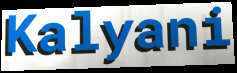
Kalyani